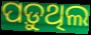
ପଡ଼ୁଥିଲ